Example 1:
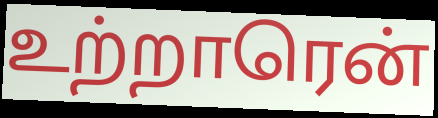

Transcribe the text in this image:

உற்றாரென்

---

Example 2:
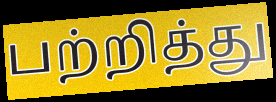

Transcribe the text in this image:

பற்றித்து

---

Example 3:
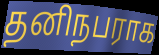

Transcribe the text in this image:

தனிநபராக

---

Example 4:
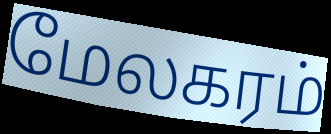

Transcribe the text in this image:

மேலகரம்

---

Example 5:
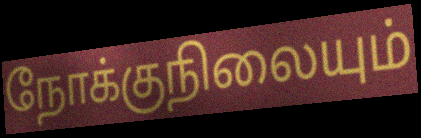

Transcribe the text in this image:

நோக்குநிலையும்